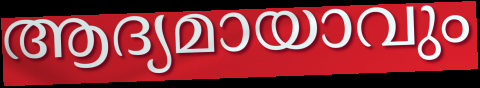
ആദ്യമായാവും